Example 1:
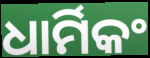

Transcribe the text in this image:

ଧାର୍ମିକଂ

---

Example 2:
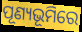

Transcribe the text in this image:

ପୂଣ୍ୟଭୂମିରେ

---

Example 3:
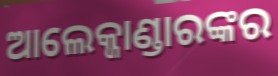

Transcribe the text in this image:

ଆଲେକ୍ଜାଣ୍ଡାରଙ୍କର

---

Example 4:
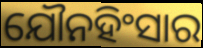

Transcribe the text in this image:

ଯୌନହିଂସାର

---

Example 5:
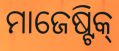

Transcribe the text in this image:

ମାଜେଷ୍ଟିକ୍